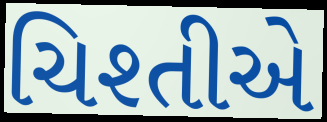
ચિશ્તીએ